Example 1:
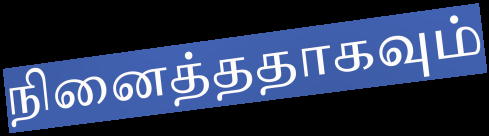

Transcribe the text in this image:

நினைத்ததாகவும்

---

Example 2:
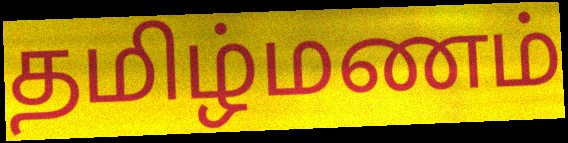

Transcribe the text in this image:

தமிழ்மணம்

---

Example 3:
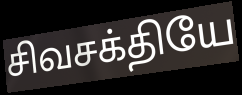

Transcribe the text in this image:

சிவசக்தியே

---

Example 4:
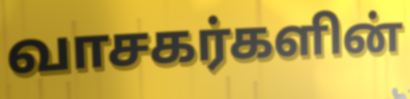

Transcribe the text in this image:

வாசகர்களின்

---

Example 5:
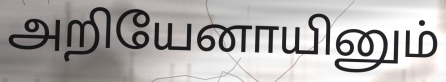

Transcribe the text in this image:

அறியேனாயினும்